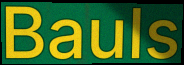
Bauls